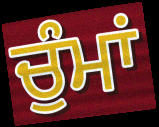
ਚੁੰਮਾਂ